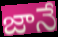
జానే